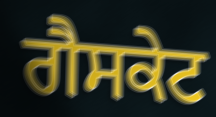
ਗੈਸਕੇਟ